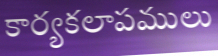
కార్యకలాపములు